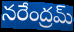
నరేంద్రమ్